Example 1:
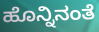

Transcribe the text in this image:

ಹೊನ್ನಿನಂತೆ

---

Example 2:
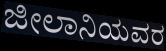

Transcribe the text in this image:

ಜೀಲಾನಿಯವರ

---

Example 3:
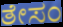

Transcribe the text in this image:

ತೇಸಂ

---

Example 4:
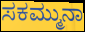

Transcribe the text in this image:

ಸಕಮ್ಮುನಾ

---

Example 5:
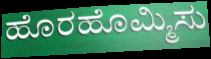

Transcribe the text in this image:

ಹೊರಹೊಮ್ಮಿಸು